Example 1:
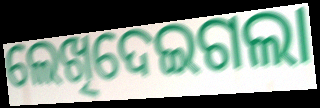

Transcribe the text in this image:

ଲେଖିଦେଇଗଲା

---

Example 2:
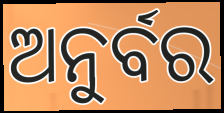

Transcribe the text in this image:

ଅନୁର୍ବର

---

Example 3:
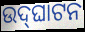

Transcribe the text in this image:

ଉଦ୍‌ଘାଟନ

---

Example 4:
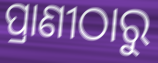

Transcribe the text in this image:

ପ୍ରାଣୀଠାରୁ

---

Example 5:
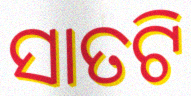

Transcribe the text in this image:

ସାତଟି